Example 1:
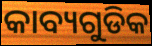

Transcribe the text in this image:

କାବ୍ୟଗୁଡିକ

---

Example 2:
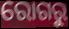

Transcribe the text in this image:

ରୋଗରୁ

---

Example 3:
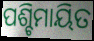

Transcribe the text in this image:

ପଶ୍ଚିମାୟିତ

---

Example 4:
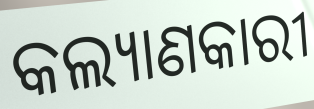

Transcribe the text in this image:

କଲ୍ୟାଣକାରୀ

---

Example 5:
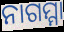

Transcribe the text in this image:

ନାଗମ୍ମା